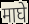
माघे